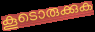
കൂടൊരുക്കുക